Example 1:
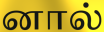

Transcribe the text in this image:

னால்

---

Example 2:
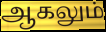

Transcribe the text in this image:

ஆகலும்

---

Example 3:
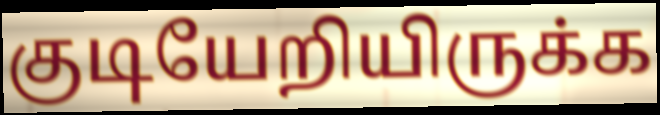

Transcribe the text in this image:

குடியேறியிருக்க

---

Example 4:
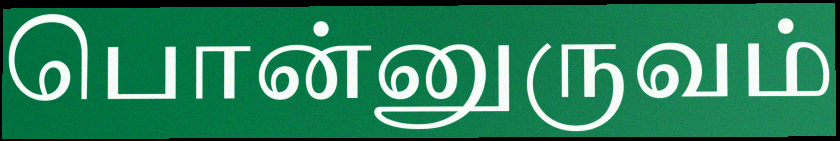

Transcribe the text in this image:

பொன்னுருவம்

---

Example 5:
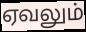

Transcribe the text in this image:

ஏவலும்